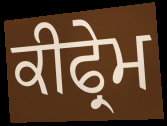
ਕੀਫ੍ਰੇਮ